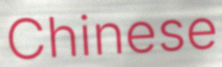
Chinese